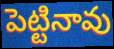
పెట్టినావు